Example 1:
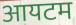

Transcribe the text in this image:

आयटम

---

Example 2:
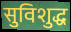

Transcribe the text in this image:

सुविशुद्ध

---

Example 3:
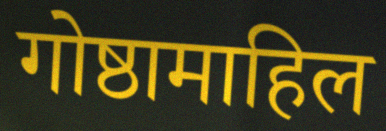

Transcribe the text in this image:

गोष्ठामाहिल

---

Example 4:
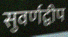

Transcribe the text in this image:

सुवर्णद्वीप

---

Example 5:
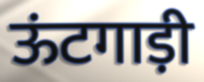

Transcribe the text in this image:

ऊंटगाड़ी